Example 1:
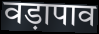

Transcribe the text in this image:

वड़ापाव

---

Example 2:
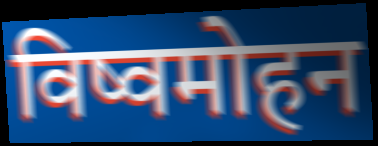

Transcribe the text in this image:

विष्वमोहन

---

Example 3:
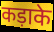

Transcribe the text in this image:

कड़ाके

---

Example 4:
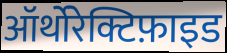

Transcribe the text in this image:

ऑर्थोरेक्टिफ़ाइड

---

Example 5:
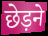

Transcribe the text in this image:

छेड़ने